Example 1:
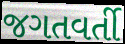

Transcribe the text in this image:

જગતવર્તી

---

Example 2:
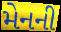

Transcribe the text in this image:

મેનની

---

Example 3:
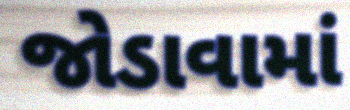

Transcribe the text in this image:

જોડાવામાં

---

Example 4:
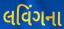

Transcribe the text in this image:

લવિંગના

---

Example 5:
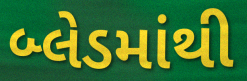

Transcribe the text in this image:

બ્લેડમાંથી